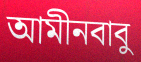
আমীনবাবু